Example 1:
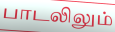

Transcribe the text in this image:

பாடலிலும்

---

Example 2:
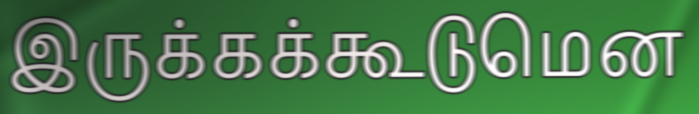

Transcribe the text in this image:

இருக்கக்கூடுமென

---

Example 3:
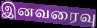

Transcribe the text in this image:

இனவரைவு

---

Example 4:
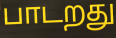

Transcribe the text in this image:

பாடறது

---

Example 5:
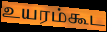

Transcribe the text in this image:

உயரம்கூட